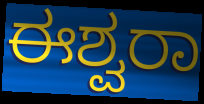
ಈಶ್ವರಾ